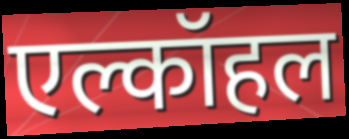
एल्कॉहल